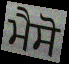
ਮੈਸੋ